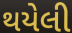
થયેલી